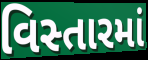
વિસ્તારમાં